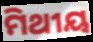
ମିଥୀୟ